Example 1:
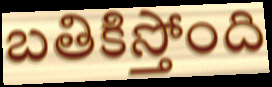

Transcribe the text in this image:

బతికిస్తోంది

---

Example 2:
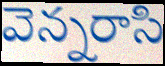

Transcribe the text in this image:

వెన్నరాసి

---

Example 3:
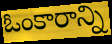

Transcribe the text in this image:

ఓంకారాన్ని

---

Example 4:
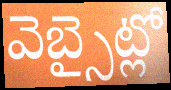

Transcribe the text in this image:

వెబ్సైట్లో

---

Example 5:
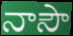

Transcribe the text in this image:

నాసౌ